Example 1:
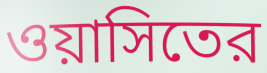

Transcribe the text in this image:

ওয়াসিতের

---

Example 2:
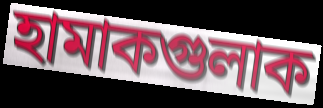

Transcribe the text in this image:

হামাকগুলাক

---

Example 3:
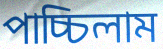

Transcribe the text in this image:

পাচ্চিলাম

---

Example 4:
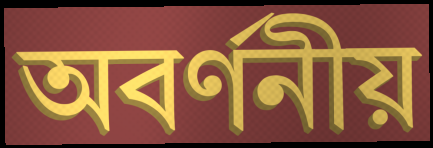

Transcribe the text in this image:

অবর্ণনীয়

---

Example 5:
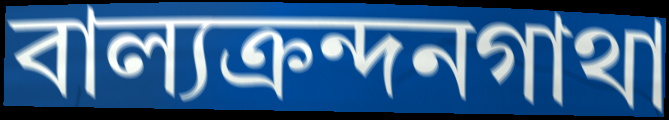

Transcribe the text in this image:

বাল্যক্রন্দনগাথা